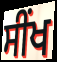
ਸੀਂਖ